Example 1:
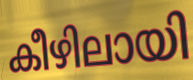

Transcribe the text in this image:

കീഴിലായി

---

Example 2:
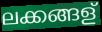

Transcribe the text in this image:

ലക്കങ്ങള്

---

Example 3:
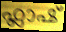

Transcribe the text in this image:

ഫ്ലാഷ്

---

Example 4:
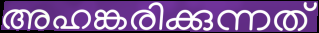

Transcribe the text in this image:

അഹങ്കരിക്കുന്നത്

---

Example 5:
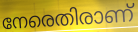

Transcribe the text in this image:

നേരെതിരാണ്